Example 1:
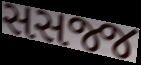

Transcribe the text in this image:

સસજ્જ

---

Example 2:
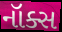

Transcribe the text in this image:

નૉક્સ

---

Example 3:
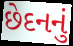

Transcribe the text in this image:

છેદનનું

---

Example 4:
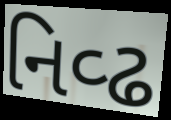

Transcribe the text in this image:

નિવ્ઢ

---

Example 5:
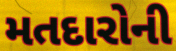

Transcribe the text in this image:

મતદારોની